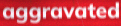
aggravated